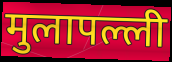
मुलापल्ली